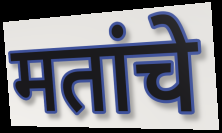
मतांचे